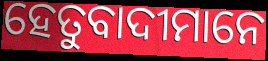
ହେତୁବାଦୀମାନେ